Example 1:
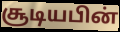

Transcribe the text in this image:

சூடியபின்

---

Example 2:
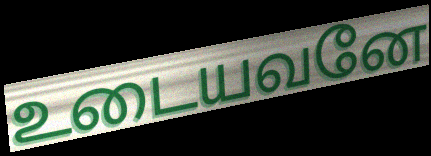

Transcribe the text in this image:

உடையவனே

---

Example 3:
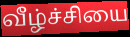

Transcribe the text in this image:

வீழ்ச்சியை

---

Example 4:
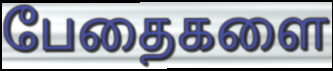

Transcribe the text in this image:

பேதைகளை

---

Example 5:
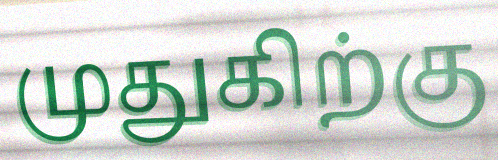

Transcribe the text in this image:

முதுகிற்கு